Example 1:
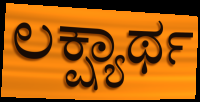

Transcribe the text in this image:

ಲಕ್ಷ್ಯಾರ್ಥ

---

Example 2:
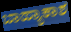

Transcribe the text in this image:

ಬಾಹ್ಯಾಕಾಶ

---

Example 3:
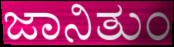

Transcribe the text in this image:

ಜಾನಿತುಂ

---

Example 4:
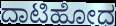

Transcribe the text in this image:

ದಾಟಿಹೋದ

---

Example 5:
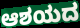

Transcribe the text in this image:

ಆಶಯದ